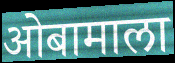
ओबामाला